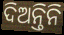
ଦିଅନ୍ତିନି